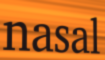
nasal